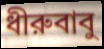
ধীরুবাবু